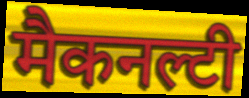
मैकनल्टी